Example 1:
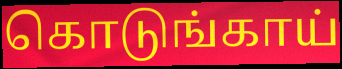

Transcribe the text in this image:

கொடுங்காய்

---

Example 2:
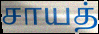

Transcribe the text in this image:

சாயத்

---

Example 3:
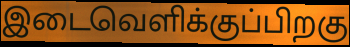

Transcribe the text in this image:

இடைவெளிக்குப்பிறகு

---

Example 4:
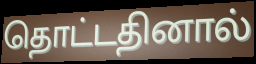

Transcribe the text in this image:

தொட்டதினால்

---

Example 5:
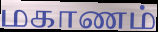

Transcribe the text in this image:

மகாணம்